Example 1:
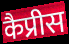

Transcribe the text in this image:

कैप्रीस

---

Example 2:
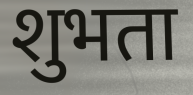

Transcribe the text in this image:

शुभता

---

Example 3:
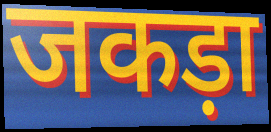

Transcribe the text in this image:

जकड़ा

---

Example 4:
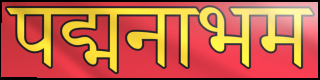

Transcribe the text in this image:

पद्मनाभम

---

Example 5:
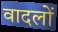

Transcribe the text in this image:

वादलों